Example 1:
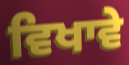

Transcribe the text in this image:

ਵਿਖਾਵੇ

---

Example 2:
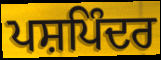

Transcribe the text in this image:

ਪਸ਼ਪਿੰਦਰ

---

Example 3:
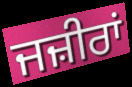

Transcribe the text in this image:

ਜਜ਼ੀਰਾਂ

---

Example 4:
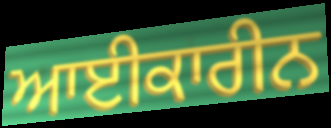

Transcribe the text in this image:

ਆਈਕਾਰੀਨ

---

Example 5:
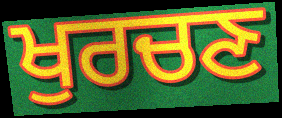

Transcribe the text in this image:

ਖੁਰਚਣ